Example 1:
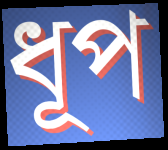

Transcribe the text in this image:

ধূপ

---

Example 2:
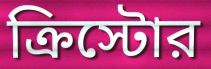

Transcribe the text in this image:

ক্রিস্টোর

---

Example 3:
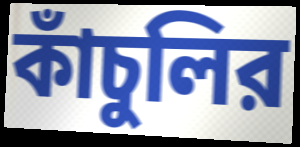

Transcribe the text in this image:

কাঁচুলির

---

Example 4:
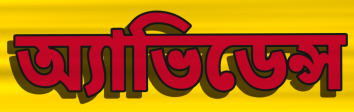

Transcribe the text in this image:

অ্যাভিডেন্স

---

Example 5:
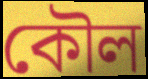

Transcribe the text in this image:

কৌল